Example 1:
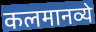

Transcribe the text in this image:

कलमानव्ये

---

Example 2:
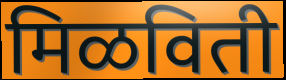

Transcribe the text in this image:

मिळविती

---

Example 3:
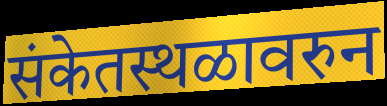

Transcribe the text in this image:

संकेतस्थळावरुन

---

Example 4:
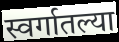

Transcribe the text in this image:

स्वर्गातल्या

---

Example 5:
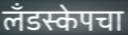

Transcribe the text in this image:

लँडस्केपचा